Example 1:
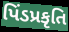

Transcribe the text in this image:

પિંડપ્રકૃતિ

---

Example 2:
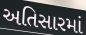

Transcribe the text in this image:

અતિસારમાં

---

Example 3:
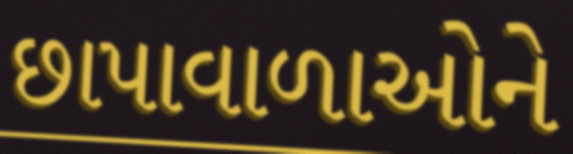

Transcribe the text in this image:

છાપાવાળાઓને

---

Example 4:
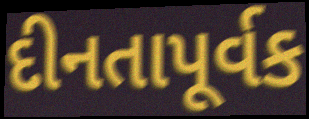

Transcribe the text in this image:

દીનતાપૂર્વક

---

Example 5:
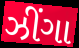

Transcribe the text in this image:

ઝીંગા